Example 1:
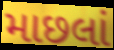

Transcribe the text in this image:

માછલાં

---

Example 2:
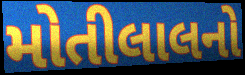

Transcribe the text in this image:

મોતીલાલનો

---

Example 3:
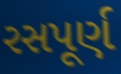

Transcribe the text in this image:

રસપૂર્ણ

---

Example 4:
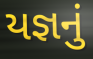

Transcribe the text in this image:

યજ્ઞનું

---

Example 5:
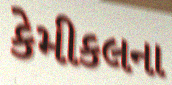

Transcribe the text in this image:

કેમીકલના